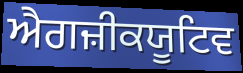
ਐਗਜ਼ੀਕਯੂਟਿਵ